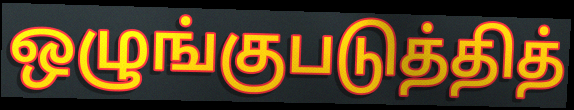
ஒழுங்குபடுத்தித்